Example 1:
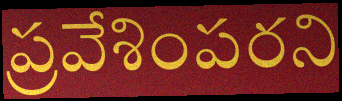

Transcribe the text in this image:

ప్రవేశింపరని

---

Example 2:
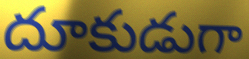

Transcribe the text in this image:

దూకుడుగా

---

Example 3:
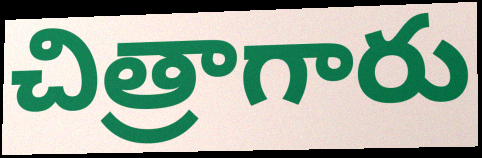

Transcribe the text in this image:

చిత్రాగారు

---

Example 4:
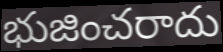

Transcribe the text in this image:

భుజించరాదు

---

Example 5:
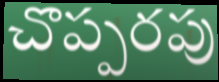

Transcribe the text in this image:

చొప్పరపు